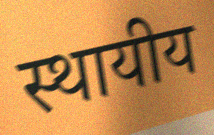
स्थायीय